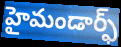
హైమండార్ఫ్